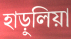
হাড়ুলিয়া